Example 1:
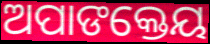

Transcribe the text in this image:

ଅପାଙକ୍ତେୟ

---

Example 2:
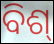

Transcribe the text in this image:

ବିଶ୍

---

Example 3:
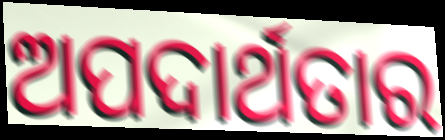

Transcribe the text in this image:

ଅପଦାର୍ଥତାର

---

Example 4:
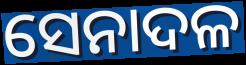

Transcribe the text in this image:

ସେନାଦଳ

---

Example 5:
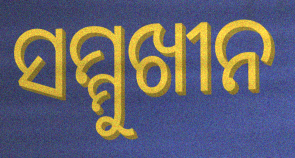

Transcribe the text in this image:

ସମ୍ମୁଖୀନ